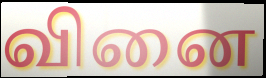
வினை